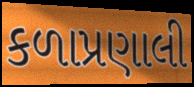
કળાપ્રણાલી